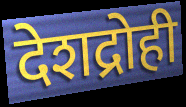
देशद्रोही